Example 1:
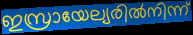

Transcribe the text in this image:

ഇസ്രായേല്യരിൽനിന്ന്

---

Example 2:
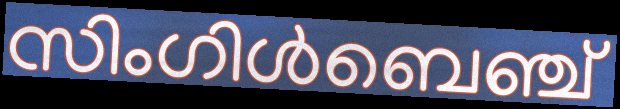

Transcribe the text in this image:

സിംഗിൾബെഞ്ച്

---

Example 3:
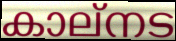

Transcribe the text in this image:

കാല്നട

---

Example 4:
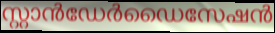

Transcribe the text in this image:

സ്റ്റാൻഡേർഡൈസേഷൻ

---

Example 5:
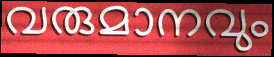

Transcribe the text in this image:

വരുമാനവും